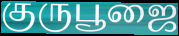
குருபூஜை